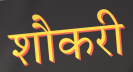
शौकरी